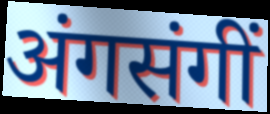
अंगसंगीं